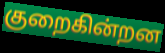
குறைகின்றன